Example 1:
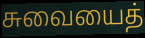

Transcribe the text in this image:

சுவையைத்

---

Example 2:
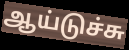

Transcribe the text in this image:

ஆய்டுச்சு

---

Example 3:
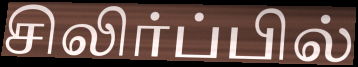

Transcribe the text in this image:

சிலிர்ப்பில்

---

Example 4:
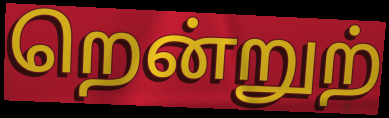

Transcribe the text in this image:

றென்றுற்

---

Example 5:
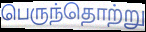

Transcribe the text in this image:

பெருந்தொற்று